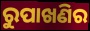
ରୁପାଖଣିର